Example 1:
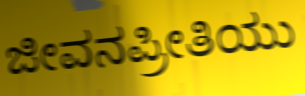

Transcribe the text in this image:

ಜೀವನಪ್ರೀತಿಯು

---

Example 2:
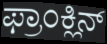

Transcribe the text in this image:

ಫ್ರಾಂಕ್ಲಿನ್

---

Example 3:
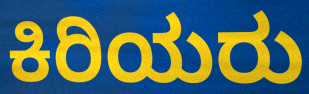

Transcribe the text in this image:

ಕಿರಿಯರು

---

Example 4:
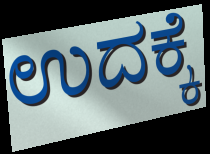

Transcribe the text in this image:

ಉದಕ್ಕೆ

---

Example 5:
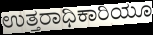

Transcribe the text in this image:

ಉತ್ತರಾಧಿಕಾರಿಯೂ